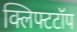
क्लिफ्टटॉप